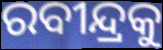
ରବୀନ୍ଦ୍ରକୁ